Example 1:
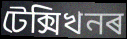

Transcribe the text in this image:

টেক্সিখনৰ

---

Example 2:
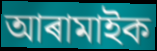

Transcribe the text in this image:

আৰামাইক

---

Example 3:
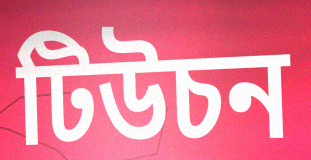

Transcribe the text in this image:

টিউচন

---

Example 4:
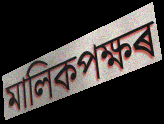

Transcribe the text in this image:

মালিকপক্ষৰ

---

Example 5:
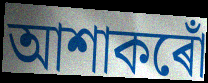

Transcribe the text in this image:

আশাকৰোঁ